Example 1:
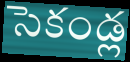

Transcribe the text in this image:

సెకండ్ల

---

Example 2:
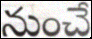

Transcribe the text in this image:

నుంచే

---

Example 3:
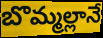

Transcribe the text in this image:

బొమ్మల్లానే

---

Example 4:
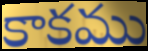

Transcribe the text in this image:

కాకము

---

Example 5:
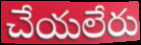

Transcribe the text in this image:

చేయలేరు